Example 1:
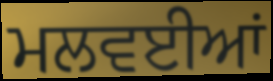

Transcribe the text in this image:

ਮਲਵਈਆਂ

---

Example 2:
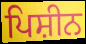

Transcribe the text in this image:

ਪਿਸ਼ੀਨ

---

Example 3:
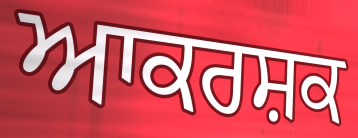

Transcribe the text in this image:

ਆਕਰਸ਼ਕ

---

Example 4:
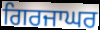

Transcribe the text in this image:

ਗਿਰਜਾਘਰ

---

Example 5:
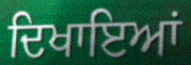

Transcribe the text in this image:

ਦਿਖਾਇਆਂ